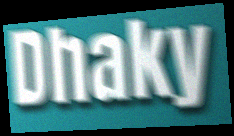
Dhaky